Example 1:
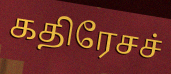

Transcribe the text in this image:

கதிரேசச்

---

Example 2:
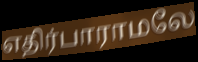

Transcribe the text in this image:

எதிர்பாராமலே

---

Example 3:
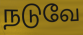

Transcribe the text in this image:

நடுவே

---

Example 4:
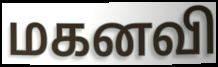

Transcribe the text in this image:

மகனவி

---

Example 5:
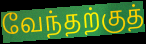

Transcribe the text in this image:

வேந்தற்குத்